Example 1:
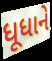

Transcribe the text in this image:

ધૂધાને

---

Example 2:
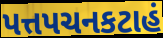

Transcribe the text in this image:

પત્તપચનકટાહં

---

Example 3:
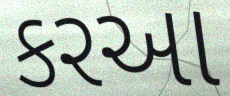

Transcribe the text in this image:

કરઆ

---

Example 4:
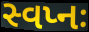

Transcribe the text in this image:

સ્વપ્નઃ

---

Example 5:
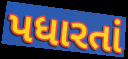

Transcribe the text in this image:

પધારતાં